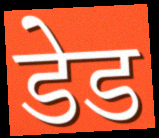
डेड